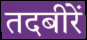
तदबीरें